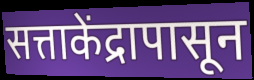
सत्ताकेंद्रापासून